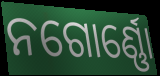
ନଗୋର୍ଣ୍ଣୋ